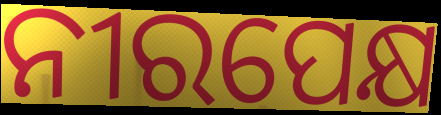
ନୀରପେକ୍ଷ